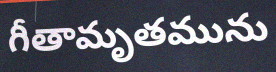
గీతామృతమును